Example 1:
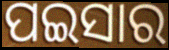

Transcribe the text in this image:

ପଇସାର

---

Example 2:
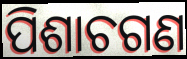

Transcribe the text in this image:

ପିଶାଚଗଣ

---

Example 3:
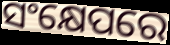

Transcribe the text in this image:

ସଂକ୍ଷେପରେ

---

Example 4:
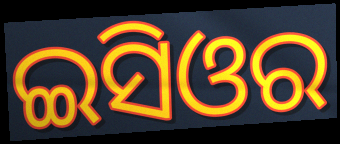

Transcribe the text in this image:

ଇସିଓର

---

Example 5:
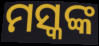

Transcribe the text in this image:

ମସ୍କଙ୍କ